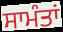
ਸਾਮੰਤਾਂ